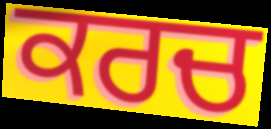
ਕਰਚ